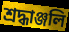
শ্ৰদ্ধাঞ্জলি